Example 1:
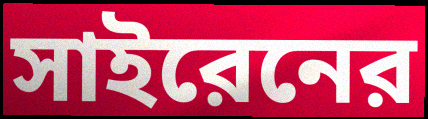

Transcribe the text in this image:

সাইরেনের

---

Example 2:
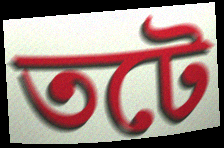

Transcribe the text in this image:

তটে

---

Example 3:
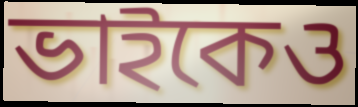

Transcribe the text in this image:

ভাইকেও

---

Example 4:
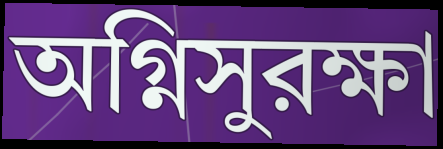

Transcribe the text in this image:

অগ্নিসুরক্ষা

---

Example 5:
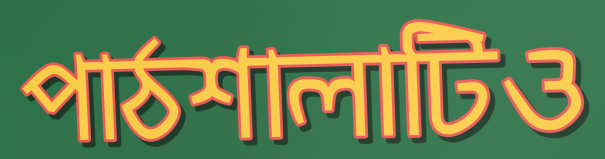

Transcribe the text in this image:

পাঠশালাটিও